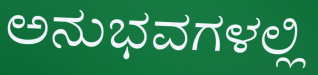
ಅನುಭವಗಳಲ್ಲಿ